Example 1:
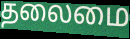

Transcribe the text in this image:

தலைமை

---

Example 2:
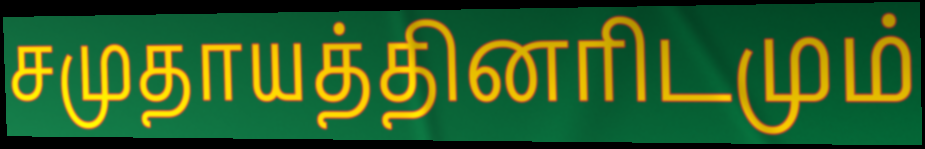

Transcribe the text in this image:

சமுதாயத்தினரிடமும்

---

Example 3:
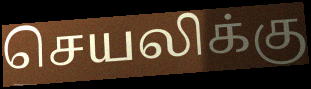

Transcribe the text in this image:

செயலிக்கு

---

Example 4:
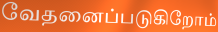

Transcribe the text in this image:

வேதனைப்படுகிறோம்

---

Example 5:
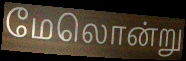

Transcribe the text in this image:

மேலொன்று